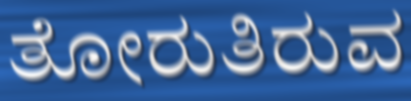
ತೋರುತಿರುವ